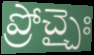
ప్రోచ్చైః